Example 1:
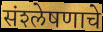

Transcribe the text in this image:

संश्लेषणाचे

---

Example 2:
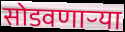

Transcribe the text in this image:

सोडवणाऱ्या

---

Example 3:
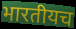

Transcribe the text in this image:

भारतीयच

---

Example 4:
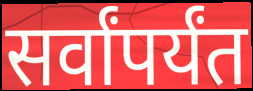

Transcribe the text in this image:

सर्वांपर्यंत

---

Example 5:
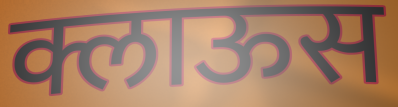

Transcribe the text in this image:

क्लाऊस